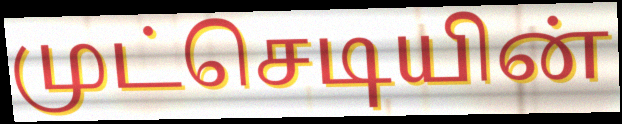
முட்செடியின்